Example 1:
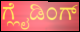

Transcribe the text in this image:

ಗ್ಲೈಡಿಂಗ್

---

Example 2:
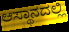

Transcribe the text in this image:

ಆಸ್ಥಾನದಲ್ಲಿ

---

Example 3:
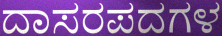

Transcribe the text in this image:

ದಾಸರಪದಗಳ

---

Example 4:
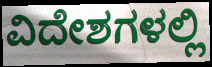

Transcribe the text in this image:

ವಿದೇಶಗಳಲ್ಲಿ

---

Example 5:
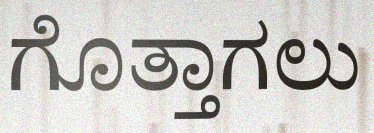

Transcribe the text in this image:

ಗೊತ್ತಾಗಲು